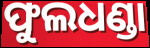
ଫୁଲଧଣ୍ଡା